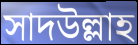
সাদউল্লাহ